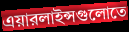
এয়ারলাইন্সগুলোতে